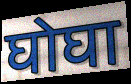
घोघा